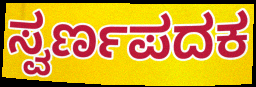
ಸ್ವರ್ಣಪದಕ